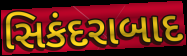
સિકંદરાબાદ